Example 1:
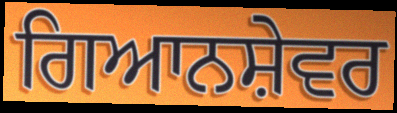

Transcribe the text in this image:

ਗਿਆਨਸ਼ੇਵਰ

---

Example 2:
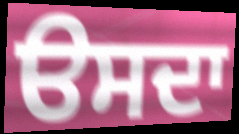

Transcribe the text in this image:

ੳਸਦਾ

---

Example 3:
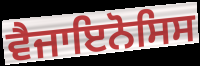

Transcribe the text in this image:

ਵੈਜਾਇਨੋਸਿਸ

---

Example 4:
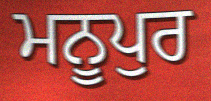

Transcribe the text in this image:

ਮਨੂਪੁਰ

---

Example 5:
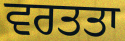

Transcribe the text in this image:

ਵਰਤਤਾ